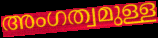
അംഗത്വമുള്ള